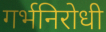
गर्भनिरोधी